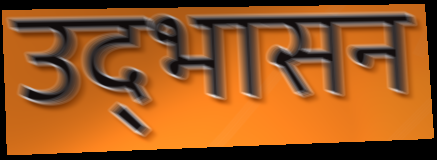
उद्भासन